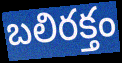
బలిరక్తం